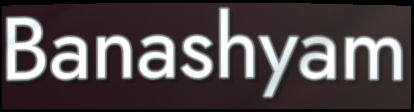
Banashyam